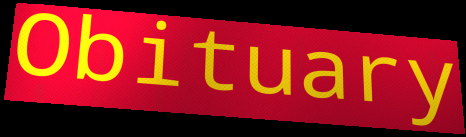
Obituary